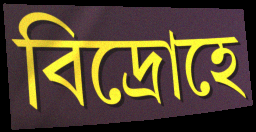
বিদ্ৰোহে